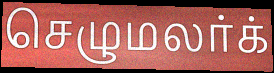
செழுமலர்க்